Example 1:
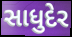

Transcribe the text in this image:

સાધુદેર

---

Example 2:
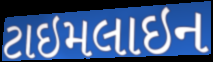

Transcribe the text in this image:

ટાઇમલાઇન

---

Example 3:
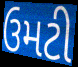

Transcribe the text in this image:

ઉમટી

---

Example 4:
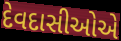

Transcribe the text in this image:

દેવદાસીઓએ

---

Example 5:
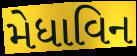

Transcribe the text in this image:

મેધાવિન